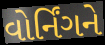
વોર્નિંગને